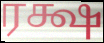
ரக்ஷ